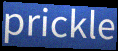
prickle